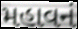
મહાવનં